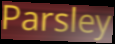
Parsley